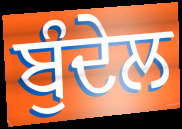
ਬੁੰਦੇਲ